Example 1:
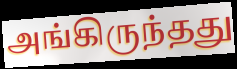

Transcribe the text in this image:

அங்கிருந்தது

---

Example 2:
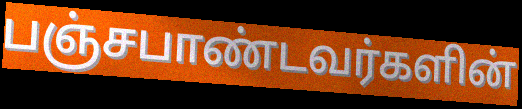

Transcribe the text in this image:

பஞ்சபாண்டவர்களின்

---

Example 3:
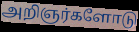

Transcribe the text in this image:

அறிஞர்களோடு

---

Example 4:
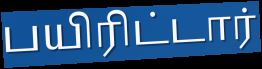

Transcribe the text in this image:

பயிரிட்டார்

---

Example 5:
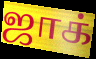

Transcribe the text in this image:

ஜாக்